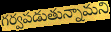
గర్వపడుతున్నామని